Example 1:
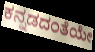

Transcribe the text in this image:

ಕನ್ನಡದಂತೆಯೇ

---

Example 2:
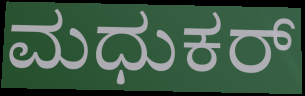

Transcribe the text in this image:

ಮಧುಕರ್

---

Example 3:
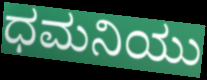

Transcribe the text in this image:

ಧಮನಿಯು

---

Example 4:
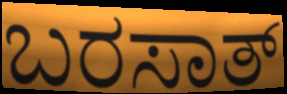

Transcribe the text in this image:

ಬರಸಾತ್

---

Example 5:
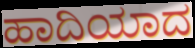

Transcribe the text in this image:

ಹಾದಿಯಾದ